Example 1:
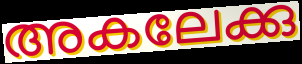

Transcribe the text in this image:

അകലേക്കു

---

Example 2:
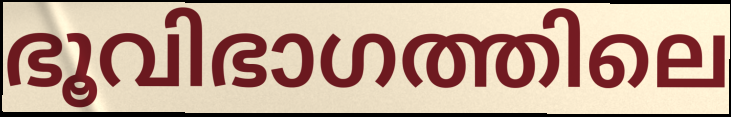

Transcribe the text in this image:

ഭൂവിഭാഗത്തിലെ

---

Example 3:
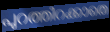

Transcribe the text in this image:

പുറത്തിറക്കാതെ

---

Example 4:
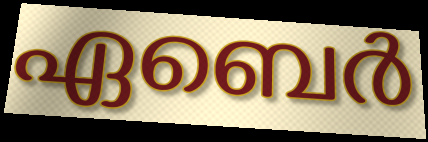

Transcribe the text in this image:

ഏബെർ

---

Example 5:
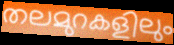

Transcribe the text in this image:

തലമുറകളിലും